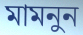
মামনুন